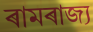
ৰামৰাজ্য